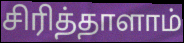
சிரித்தாளாம்